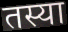
तस्या